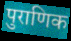
पुराणिक